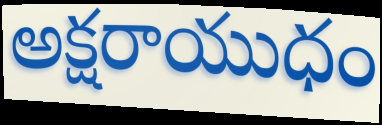
అక్షరాయుధం